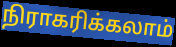
நிராகரிக்கலாம்